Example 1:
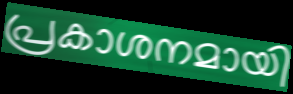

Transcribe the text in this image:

പ്രകാശനമായി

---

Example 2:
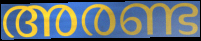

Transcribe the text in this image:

അരണ്ട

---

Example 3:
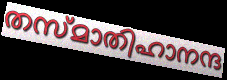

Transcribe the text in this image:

തസ്മാതിഹാനന്ദ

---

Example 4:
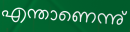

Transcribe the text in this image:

എന്താണെന്നു്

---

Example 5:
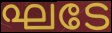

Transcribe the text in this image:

ഘടേ